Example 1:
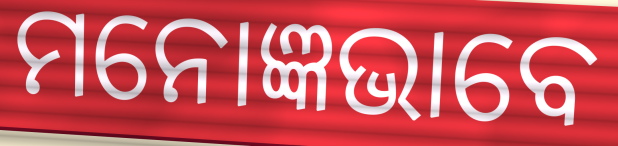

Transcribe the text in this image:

ମନୋଜ୍ଞଭାବେ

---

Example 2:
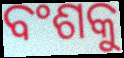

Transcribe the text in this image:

ବଂଶକୁ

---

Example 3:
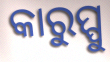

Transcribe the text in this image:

କାରୁପ୍ପୁ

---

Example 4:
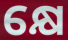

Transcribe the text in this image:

କ୍ଷେ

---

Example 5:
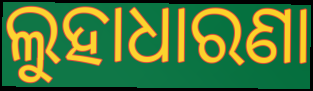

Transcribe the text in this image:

ଲୁହାଧାରଣା